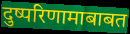
दुष्परिणामाबाबत